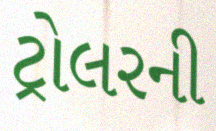
ટ્રોલરની